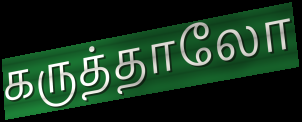
கருத்தாலோ